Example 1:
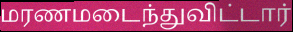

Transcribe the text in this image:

மரணமடைந்துவிட்டார்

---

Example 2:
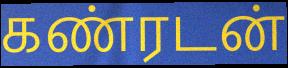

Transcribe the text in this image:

கண்ரடன்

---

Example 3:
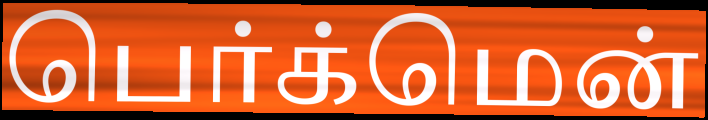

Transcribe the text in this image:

பெர்க்மென்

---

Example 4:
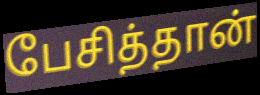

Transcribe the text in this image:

பேசித்தான்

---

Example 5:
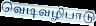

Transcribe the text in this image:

வெடிவழிபாடு